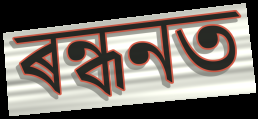
ৰন্ধনত